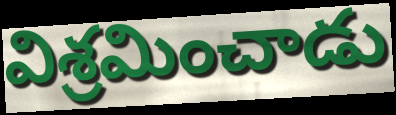
విశ్రమించాడు